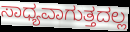
ಸಾಧ್ಯವಾಗುತ್ತದಲ್ಲ